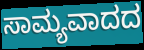
ಸಾಮ್ಯವಾದದ